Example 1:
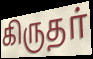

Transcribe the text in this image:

கிருதர்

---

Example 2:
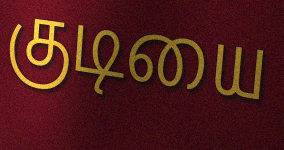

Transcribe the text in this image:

குடியை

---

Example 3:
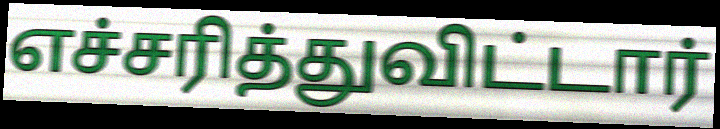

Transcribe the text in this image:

எச்சரித்துவிட்டார்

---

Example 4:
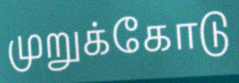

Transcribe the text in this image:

முறுக்கோடு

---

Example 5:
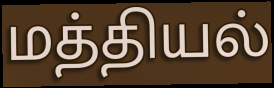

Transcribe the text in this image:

மத்தியல்